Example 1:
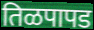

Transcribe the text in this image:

तिळपापड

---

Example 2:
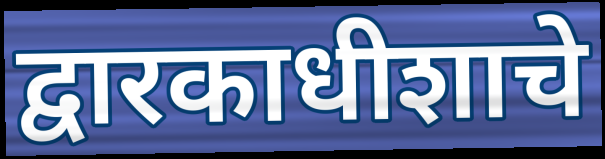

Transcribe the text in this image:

द्वारकाधीशाचे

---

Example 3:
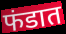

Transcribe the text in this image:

फंडात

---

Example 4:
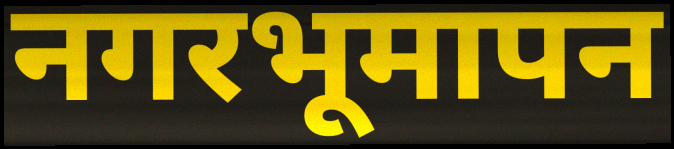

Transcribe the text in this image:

नगरभूमापन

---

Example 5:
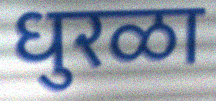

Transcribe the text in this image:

धुरळा